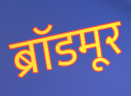
ब्रॉडमूर